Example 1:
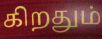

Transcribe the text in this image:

கிறதும்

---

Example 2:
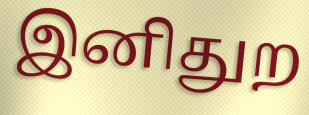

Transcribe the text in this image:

இனிதுற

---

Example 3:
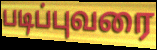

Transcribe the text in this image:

படிப்புவரை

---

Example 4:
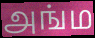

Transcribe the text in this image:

அங்ம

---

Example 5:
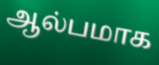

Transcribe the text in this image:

ஆல்பமாக